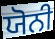
ਯੋਨੀ